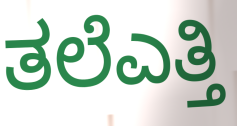
ತಲೆಎತ್ತಿ